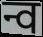
न्व